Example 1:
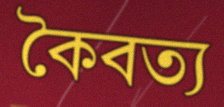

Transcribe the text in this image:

কৈবত্য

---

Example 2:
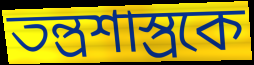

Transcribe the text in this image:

তন্ত্রশাস্ত্রকে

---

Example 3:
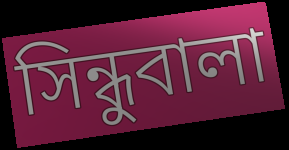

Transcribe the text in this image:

সিন্ধুবালা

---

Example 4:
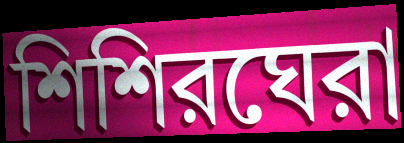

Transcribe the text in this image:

শিশিরঘেরা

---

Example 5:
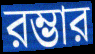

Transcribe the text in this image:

রম্ভার